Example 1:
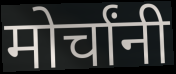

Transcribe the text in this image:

मोर्चांनी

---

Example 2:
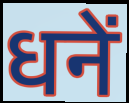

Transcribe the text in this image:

धनें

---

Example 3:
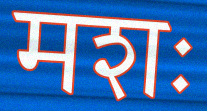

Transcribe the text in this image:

मशः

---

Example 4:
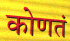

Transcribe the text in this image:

कोणतं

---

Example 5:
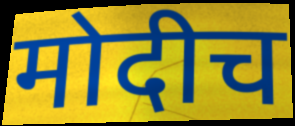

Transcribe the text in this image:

मोदीच